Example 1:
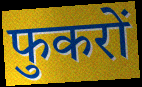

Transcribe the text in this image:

फुकरों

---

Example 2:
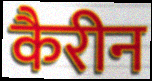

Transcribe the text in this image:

कैरीन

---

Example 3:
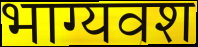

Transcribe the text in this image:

भाग्यवश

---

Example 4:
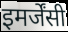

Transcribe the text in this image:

इमर्जेंसी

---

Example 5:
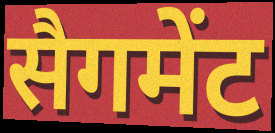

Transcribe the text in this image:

सैगमेंट